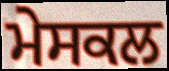
ਮੇਸਕਲ